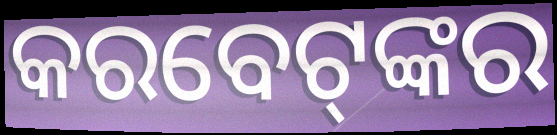
କରବେଟ୍‌ଙ୍କର